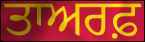
ਤਾਅਰਫ਼